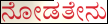
ನೋಡತೇನು